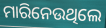
ମାରିନେଉଥିଲେ